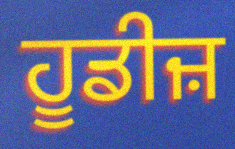
ਹੂਡੀਜ਼